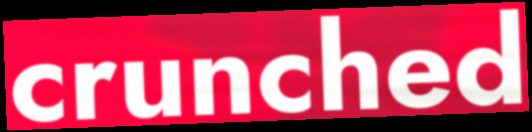
crunched